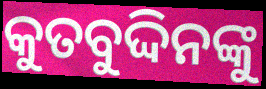
କୁତବୁଦ୍ଦିନଙ୍କୁ